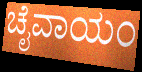
ಚೈವಾಯಂ